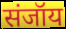
संजॉय